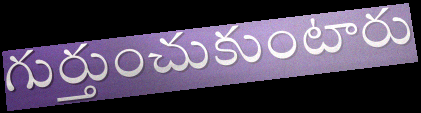
గుర్తుంచుకుంటారు